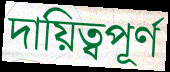
দায়িত্বপূর্ণ